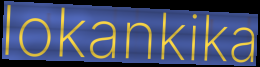
lokankika